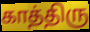
காத்திரு